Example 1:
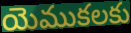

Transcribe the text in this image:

యెముకలకు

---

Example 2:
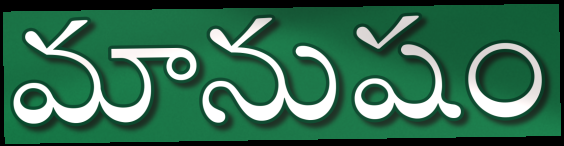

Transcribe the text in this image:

మానుషం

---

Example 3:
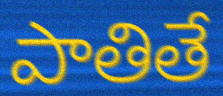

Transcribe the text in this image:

పాతితే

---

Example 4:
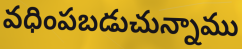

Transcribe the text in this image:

వధింపబడుచున్నాము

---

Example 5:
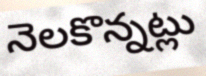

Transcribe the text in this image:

నెలకొన్నట్లు